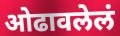
ओढावलेलं